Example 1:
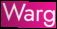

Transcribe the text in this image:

Warg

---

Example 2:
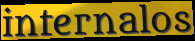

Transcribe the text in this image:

internalos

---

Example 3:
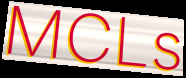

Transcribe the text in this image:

MCLs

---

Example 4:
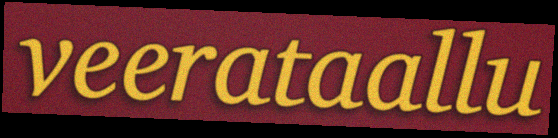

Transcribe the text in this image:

veerataallu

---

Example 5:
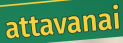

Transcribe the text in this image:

attavanai